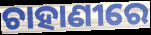
ଚାହାଣୀରେ